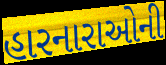
હારનારાઓની